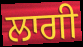
ਲਾਗੀ